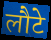
लौटे